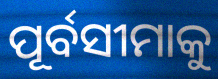
ପୂର୍ବସୀମାକୁ